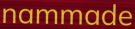
nammade